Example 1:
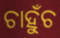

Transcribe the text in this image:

ଚାହୁଁଚ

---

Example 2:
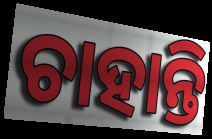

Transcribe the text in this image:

ଚାହାନ୍ତି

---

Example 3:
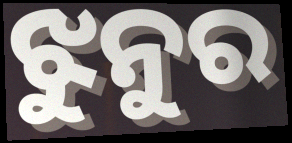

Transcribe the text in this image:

ଝୁନୁର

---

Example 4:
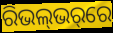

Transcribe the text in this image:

ରିଭଲ୍‌ଭର୍‌ରେ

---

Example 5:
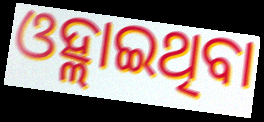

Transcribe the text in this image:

ଓହ୍ଲାଇଥିବା